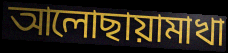
আলোছায়ামাখা